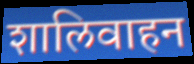
शालिवाहन